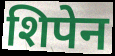
शिपेन